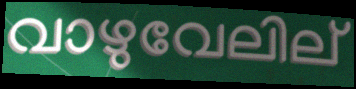
വാഴുവേലില്